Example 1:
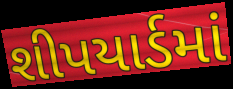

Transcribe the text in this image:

શીપયાર્ડમાં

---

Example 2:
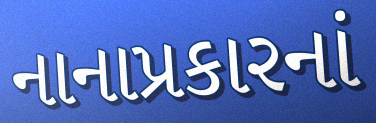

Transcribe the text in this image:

નાનાપ્રકારનાં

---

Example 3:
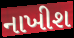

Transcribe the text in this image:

નાખીશ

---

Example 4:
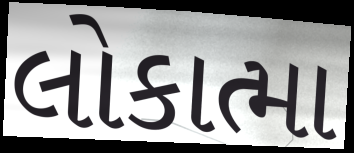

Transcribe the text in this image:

લોકાત્મા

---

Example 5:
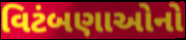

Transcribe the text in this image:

વિટંબણાઓનો